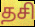
தசி